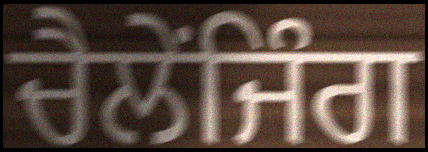
ਚੈਲੇਂਜਿੰਗ